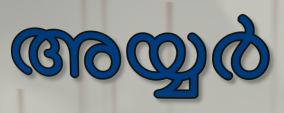
അയ്യർ